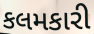
કલમકારી